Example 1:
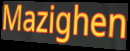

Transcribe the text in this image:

Mazighen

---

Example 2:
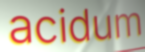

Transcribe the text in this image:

acidum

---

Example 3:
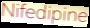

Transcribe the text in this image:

Nifedipine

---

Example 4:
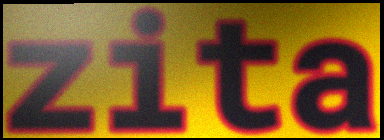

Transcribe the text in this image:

zita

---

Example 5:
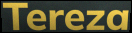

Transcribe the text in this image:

Tereza